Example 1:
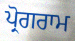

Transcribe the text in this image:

ਪ੍ਰੋਗਰਾਮ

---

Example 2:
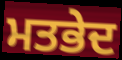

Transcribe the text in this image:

ਮਤਭੇਦ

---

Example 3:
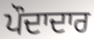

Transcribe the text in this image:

ਪੌਦਾਦਾਰ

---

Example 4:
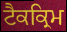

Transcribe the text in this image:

ਟੈਕਕ੍ਰਿਮ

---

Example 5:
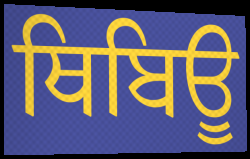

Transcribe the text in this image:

ਥਿਬਿਊ